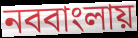
নববাংলায়